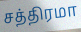
சத்திரமா